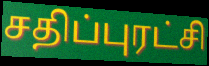
சதிப்புரட்சி